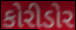
કોરીડોર